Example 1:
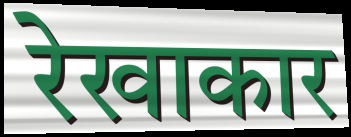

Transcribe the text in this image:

रेखाकार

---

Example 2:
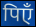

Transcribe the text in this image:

पिएँ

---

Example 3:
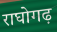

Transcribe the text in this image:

राघोगढ़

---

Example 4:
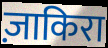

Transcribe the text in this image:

ज़ाकिरा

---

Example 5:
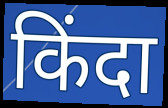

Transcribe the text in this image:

किंदा